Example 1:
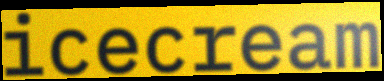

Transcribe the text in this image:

icecream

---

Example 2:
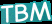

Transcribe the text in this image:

TBM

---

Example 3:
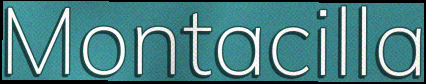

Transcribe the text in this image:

Montacilla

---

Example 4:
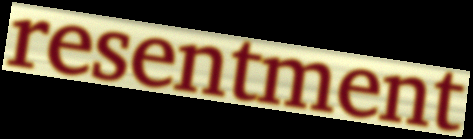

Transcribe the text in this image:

resentment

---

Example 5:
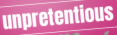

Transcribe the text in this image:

unpretentious